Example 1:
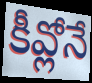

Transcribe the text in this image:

కీవ్లోనే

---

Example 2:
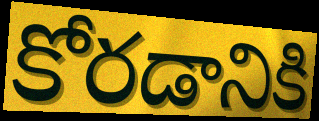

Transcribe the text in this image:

కోరడానికి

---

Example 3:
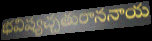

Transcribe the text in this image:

భవిష్యచ్చతురాననాయ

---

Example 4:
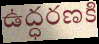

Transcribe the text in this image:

ఉద్ధరణకి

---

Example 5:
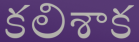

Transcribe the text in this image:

కలిశాక